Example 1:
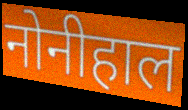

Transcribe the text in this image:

नोनीहाल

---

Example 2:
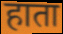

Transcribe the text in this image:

हाता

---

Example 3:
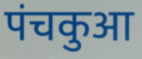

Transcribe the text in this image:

पंचकुआ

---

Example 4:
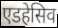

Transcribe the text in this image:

एडहेसिव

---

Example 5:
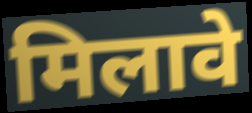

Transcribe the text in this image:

मिलावे